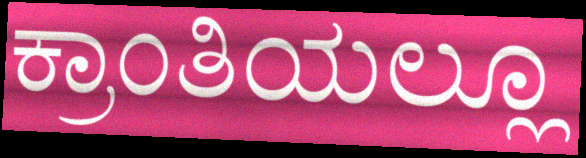
ಕ್ರಾಂತಿಯಲ್ಲೂ